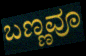
ಬಣ್ಣವೂ